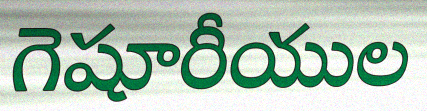
గెషూరీయుల